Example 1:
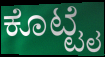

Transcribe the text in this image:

ಕೊಟ್ಟೈ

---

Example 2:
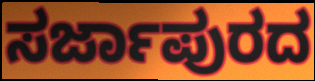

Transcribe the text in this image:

ಸರ್ಜಾಪುರದ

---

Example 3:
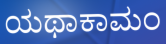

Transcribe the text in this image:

ಯಥಾಕಾಮಂ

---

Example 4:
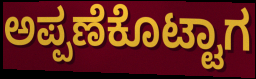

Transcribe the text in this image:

ಅಪ್ಪಣೆಕೊಟ್ಟಾಗ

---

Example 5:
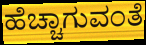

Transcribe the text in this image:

ಹೆಚ್ಚಾಗುವಂತೆ